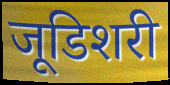
जूडिशरी